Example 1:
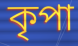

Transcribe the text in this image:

কৃপা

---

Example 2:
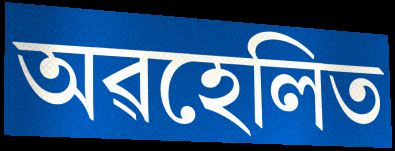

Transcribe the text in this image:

অৱহেলিত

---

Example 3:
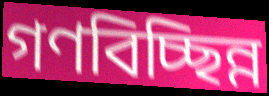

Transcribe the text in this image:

গণবিচ্ছিন্ন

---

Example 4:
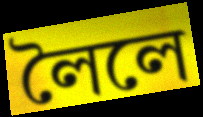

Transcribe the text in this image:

লৈলে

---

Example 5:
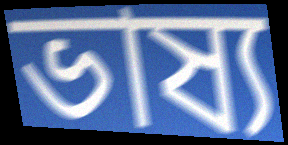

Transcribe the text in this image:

ভাষ্য